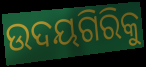
ଉଦୟଗିରିକୁ